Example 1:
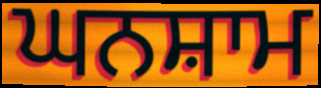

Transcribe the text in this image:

ਘਨਸ਼ਾਮ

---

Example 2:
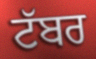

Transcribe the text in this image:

ਟੱਬਰ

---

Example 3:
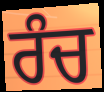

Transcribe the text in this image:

ਰੰਚ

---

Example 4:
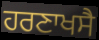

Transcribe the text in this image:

ਹਰਣਾਖਸੈ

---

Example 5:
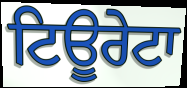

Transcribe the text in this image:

ਟਿਊਰੇਟਾ